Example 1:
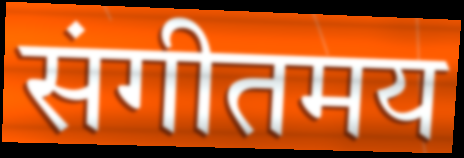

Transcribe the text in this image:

संगीतमय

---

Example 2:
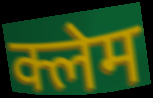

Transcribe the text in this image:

क्लेम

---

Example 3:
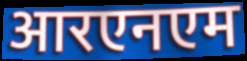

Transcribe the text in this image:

आरएनएम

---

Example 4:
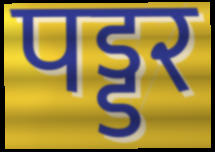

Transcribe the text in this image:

पड्डर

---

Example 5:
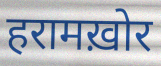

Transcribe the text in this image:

हरामख़ोर